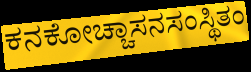
ಕನಕೋಚ್ಚಾಸನಸಂಸ್ಥಿತಂ